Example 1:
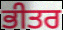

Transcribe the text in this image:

ਭੀਤਰ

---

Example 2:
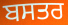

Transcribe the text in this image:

ਬਸਤਰ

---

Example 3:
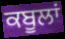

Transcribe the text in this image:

ਕਬੂਲਾਂ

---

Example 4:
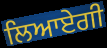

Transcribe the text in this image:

ਲਿਆਏਗੀ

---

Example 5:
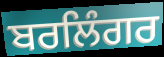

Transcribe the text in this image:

ਬਰਲਿੰਗਰ